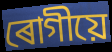
ৰোগীয়ে